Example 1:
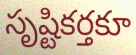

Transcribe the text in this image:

సృష్టికర్తకూ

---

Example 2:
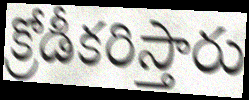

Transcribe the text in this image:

క్రోడీకరిస్తారు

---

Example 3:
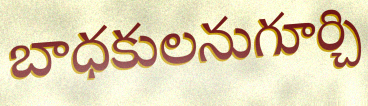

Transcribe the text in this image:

బాధకులనుగూర్చి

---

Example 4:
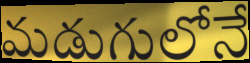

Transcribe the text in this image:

మడుగులోనే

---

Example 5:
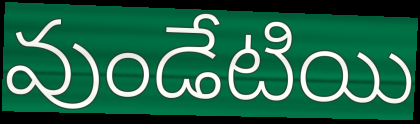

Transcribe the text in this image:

వుండేటియి